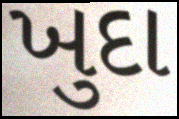
ખુદા